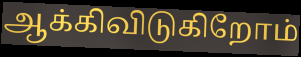
ஆக்கிவிடுகிறோம்